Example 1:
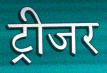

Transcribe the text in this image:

ट्रीजर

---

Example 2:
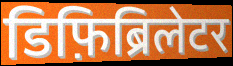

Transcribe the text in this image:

डिफ़िब्रिलेटर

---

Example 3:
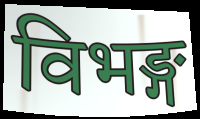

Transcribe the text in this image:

विभङ्ग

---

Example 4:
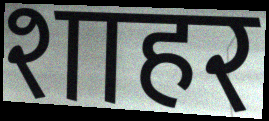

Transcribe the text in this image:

शाहर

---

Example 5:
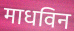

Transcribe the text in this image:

माधविन